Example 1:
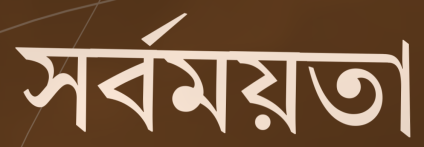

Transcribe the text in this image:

সর্বময়তা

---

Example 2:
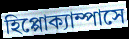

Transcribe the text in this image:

হিপ্পোক্যাম্পাসে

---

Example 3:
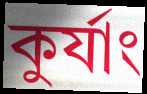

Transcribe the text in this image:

কুর্যাং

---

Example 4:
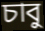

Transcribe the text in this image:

চাবু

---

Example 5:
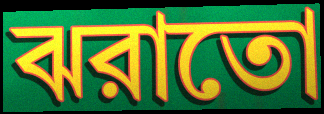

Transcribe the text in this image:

ঝরাতো